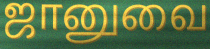
ஜானுவை